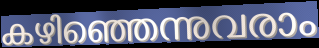
കഴിഞ്ഞെന്നുവരാം